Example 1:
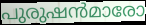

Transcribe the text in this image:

പുരുഷൻമാരോ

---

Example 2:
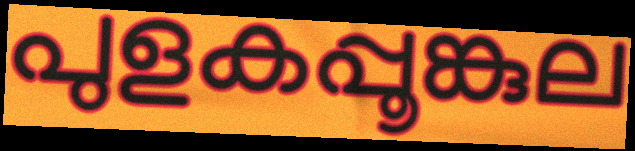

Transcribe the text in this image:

പുളകപ്പൂങ്കുല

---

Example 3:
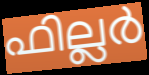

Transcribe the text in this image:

ഫില്ലർ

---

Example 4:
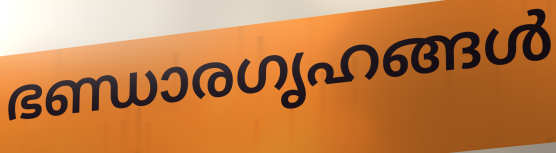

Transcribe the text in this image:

ഭണ്ഡാരഗൃഹങ്ങൾ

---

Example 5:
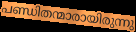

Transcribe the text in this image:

പണ്ഡിതന്മാരായിരുന്നു